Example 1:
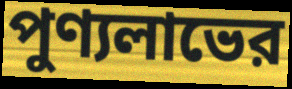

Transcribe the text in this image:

পুণ্যলাভের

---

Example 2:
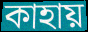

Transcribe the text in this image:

কাহায়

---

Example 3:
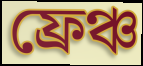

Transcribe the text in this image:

ফ্রেঞ্চ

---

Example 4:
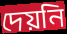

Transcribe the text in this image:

দেয়নি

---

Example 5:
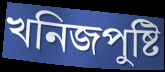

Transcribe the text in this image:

খনিজপুষ্টি